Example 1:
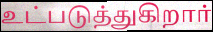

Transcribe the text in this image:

உட்படுத்துகிறார்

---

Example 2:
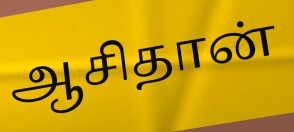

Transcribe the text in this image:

ஆசிதான்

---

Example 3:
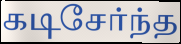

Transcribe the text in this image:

கடிசேர்ந்த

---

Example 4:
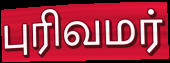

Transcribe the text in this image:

புரிவமர்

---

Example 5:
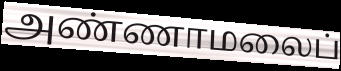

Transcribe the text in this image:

அண்ணாமலைப்